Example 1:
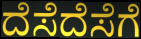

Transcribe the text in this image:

ದೆಸೆದೆಸೆಗೆ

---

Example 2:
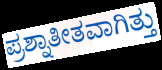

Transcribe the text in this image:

ಪ್ರಶ್ನಾತೀತವಾಗಿತ್ತು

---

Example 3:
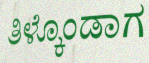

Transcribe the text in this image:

ತಿಳ್ಕೊಂಡಾಗ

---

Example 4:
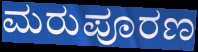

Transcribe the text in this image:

ಮರುಪೂರಣ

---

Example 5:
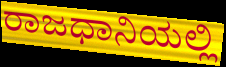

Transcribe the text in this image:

ರಾಜಧಾನಿಯಲ್ಲಿ